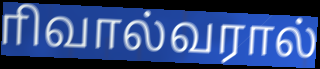
ரிவால்வரால்